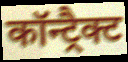
कॉन्‍ट्रैक्‍ट